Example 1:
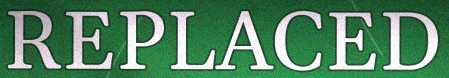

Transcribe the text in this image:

REPLACED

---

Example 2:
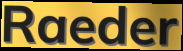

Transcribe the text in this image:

Raeder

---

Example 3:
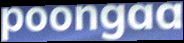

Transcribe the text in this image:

poongaa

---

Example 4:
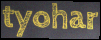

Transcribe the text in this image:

tyohar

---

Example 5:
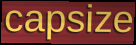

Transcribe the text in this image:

capsize